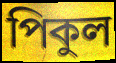
পিকুল